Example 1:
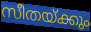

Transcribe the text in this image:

സീതയ്ക്കും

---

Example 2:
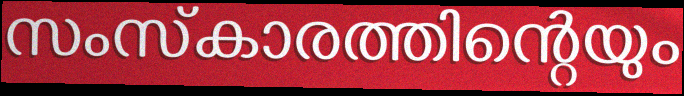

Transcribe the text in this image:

സംസ്‌കാരത്തിന്റെയും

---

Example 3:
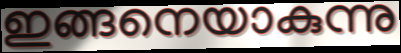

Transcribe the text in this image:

ഇങ്ങനെയാകുന്നു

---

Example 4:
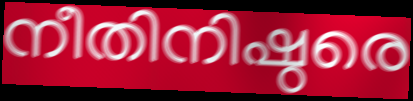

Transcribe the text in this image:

നീതിനിഷ്ഠരെ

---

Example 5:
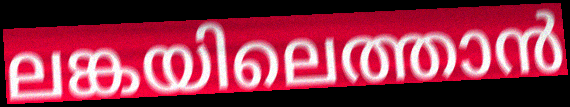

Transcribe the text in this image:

ലങ്കയിലെത്താൻ